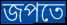
জপতে